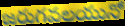
జరుగవలయునో